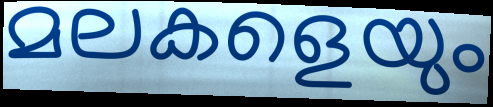
മലകളെയും